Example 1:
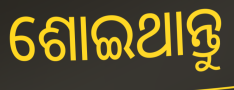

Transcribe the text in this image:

ଶୋଇଥାନ୍ତୁ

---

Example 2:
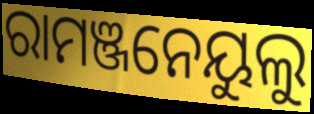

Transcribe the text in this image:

ରାମଞ୍ଜନେୟୁଲୁ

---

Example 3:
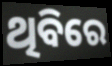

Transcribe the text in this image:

ଥିବିରେ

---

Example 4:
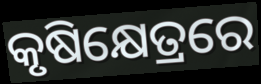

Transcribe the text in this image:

କୃଷିକ୍ଷେତ୍ରରେ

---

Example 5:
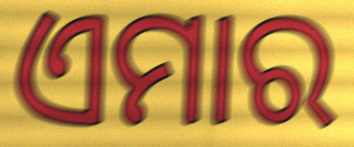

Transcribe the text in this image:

ଏମାର